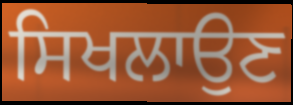
ਸਿਖਲਾਉਣ